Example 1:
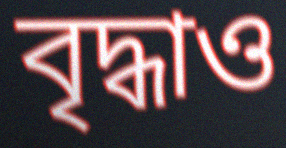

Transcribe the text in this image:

বৃদ্ধাও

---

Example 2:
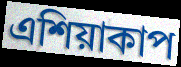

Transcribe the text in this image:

এশিয়াকাপ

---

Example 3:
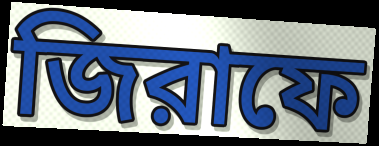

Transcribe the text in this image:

জিরাফে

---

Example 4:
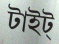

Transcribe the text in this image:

টাইট্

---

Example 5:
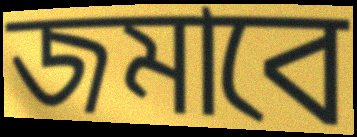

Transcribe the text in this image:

জমাবে